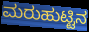
ಮರುಹುಟ್ಟಿನ